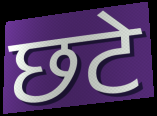
छटे